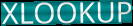
XLOOKUP